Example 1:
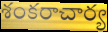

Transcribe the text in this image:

శంకరాచార్య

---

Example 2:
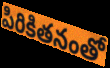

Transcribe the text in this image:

పిరికితనంతో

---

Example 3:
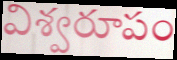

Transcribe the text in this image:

విశ్వరూపం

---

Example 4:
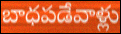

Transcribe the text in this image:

బాధపడేవాళ్లు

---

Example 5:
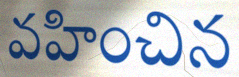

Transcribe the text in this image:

వహించిన